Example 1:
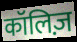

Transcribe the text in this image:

कॉलिज़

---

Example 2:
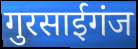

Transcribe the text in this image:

गुरसाईगंज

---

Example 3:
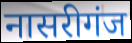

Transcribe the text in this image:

नासरीगंज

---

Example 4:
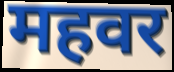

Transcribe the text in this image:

महवर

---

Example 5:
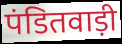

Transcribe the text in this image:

पंडितवाड़ी